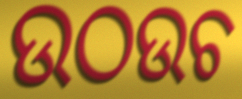
ଉଠଉଚ